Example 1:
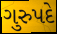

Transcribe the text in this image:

ગુરુપદે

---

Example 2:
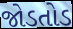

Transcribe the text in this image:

જોડતોડ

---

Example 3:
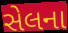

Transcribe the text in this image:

સેલના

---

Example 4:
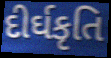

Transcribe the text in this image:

દીર્ઘકૃતિ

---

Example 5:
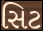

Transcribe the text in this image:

સિટ